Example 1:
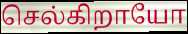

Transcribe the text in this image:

செல்கிறாயோ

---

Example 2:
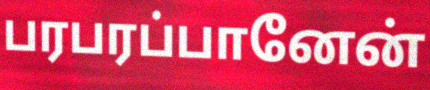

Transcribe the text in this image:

பரபரப்பானேன்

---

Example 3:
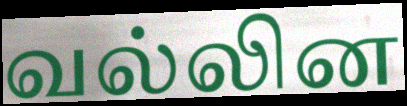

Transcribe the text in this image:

வல்லின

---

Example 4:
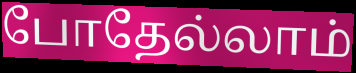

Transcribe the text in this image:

போதேல்லாம்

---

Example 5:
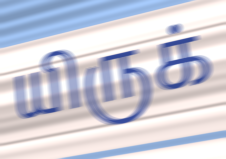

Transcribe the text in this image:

யிருக்